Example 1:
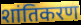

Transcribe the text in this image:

शांतिकरण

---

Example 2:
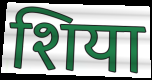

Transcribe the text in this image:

शिया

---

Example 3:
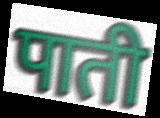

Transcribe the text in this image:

पाती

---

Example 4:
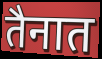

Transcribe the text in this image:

तैनात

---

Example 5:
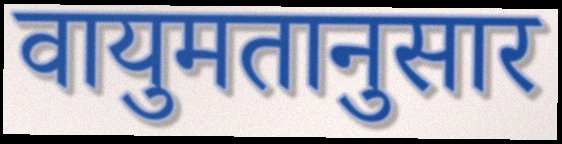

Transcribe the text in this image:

वायुमतानुसार